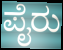
ಪೈರು